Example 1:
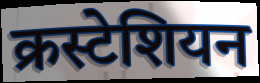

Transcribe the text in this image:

क्रस्टेशियन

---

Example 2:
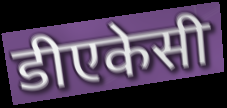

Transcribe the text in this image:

डीएकेसी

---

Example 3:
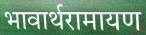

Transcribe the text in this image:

भावार्थरामायण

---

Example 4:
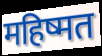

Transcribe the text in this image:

महिष्मत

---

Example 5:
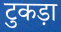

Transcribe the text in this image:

टुकड़ा